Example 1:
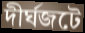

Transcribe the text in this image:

দীর্ঘজটে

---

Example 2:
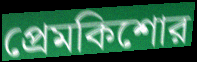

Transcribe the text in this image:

প্রেমকিশোর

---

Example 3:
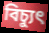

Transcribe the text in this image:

বিচ্যুৎ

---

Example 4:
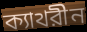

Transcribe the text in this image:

ক্যাথরীন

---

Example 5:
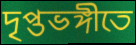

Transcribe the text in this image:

দৃপ্তভঙ্গীতে